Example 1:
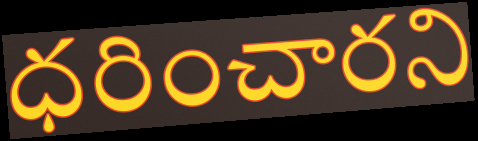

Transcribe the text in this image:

ధరించారని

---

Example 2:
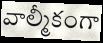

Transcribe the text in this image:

వాల్మీకంగా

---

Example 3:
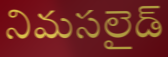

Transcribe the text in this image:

నిమసలైడ్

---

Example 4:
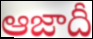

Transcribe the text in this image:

ఆజాదీ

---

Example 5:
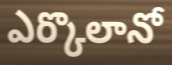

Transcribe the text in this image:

ఎర్కొలానో